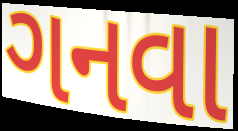
ગનવા